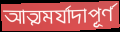
আত্মমর্যাদাপূর্ণ